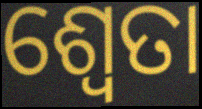
ଶ୍ୱେତା